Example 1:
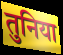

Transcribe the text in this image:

तुनिया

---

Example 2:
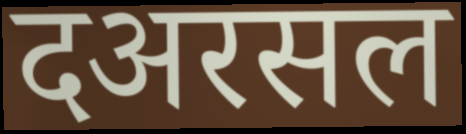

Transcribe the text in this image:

दअरसल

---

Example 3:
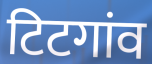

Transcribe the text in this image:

टिटगांव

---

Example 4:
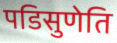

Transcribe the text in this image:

पडिसुणेति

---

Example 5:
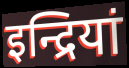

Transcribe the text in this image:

इन्द्रियां